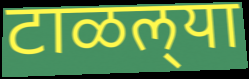
टाळल्या